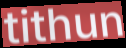
tithun